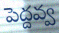
పెద్దవ్వ